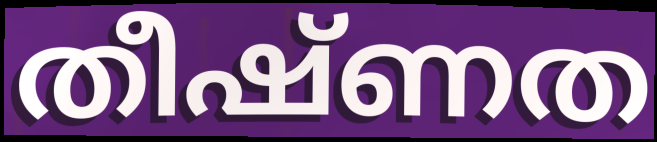
തീഷ്ണത